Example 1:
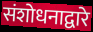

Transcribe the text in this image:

संशोधनाद्वारे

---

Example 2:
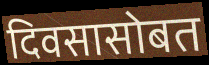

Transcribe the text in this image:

दिवसासोबत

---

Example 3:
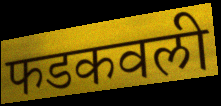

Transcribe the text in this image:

फडकवली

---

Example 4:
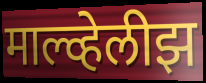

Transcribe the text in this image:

माल्व्हेलीझ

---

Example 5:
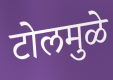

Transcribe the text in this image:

टोलमुळे